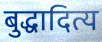
बुद्धादित्य